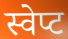
स्वेप्ट